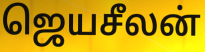
ஜெயசீலன்